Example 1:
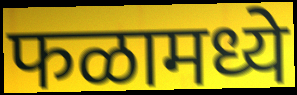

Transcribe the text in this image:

फळामध्ये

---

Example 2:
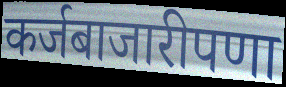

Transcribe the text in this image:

कर्जबाजारीपणा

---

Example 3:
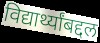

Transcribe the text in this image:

विद्यार्थ्यांबद्दल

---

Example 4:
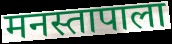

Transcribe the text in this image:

मनस्तापाला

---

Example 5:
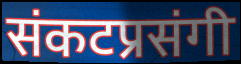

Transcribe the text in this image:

संकटप्रसंगी